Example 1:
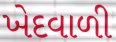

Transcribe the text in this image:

ખેદવાળી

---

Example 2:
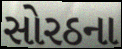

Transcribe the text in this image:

સોરઠના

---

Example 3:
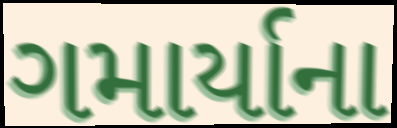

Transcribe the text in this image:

ગમાર્યાના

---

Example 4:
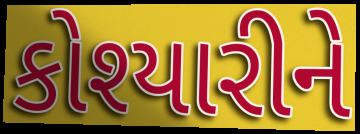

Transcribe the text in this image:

કોશ્યારીને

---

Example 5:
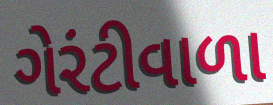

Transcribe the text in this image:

ગેરંટીવાળા